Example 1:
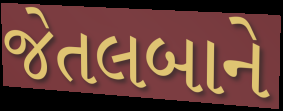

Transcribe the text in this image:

જેતલબાને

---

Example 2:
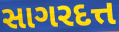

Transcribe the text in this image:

સાગરદત્ત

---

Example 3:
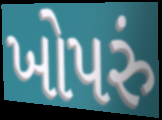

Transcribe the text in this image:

ખોપરું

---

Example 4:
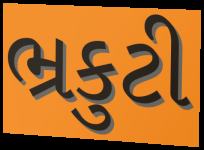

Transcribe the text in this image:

ભ્રકુટી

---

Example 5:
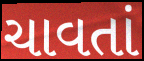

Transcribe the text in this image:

ચાવતાં